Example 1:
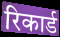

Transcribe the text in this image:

रिकार्ड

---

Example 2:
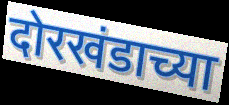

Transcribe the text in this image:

दोरखंडाच्या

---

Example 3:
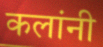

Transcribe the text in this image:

कलांनी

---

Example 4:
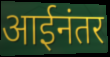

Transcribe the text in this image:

आईनंतर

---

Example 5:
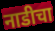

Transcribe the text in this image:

नाडीचा